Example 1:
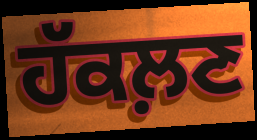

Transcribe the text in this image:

ਹੱਕਲ਼ਣ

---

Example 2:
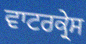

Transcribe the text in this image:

ਵਾਟਰਕ੍ਰੇਸ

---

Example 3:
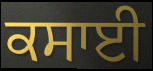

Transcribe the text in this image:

ਕਸਾਈ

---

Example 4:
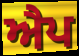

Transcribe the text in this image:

ਐਪ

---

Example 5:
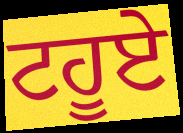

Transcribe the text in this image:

ਟਹੂਏ